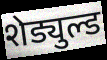
शेड्युल्ड